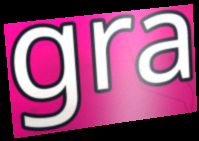
gra